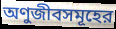
অণুজীবসমূহের